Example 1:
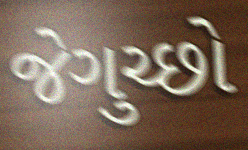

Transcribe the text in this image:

જેગુચ્છો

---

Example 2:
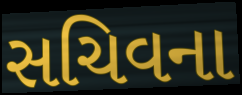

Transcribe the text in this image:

સચિવના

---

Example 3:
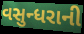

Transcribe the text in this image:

વસુન્ધરાની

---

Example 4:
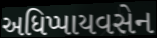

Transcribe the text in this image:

અધિપ્પાયવસેન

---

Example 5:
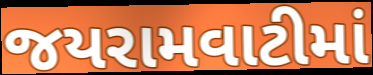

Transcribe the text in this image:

જયરામવાટીમાં